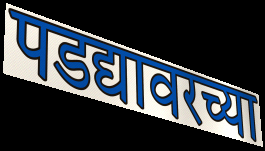
पडद्यावरच्या